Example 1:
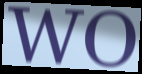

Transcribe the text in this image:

WO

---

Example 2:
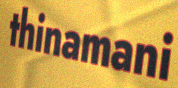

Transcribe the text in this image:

thinamani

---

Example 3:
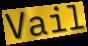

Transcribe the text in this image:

Vail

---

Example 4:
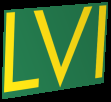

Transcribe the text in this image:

LVI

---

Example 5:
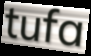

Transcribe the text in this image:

tufa